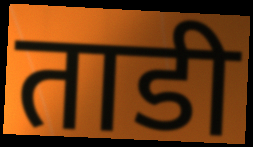
ताडी